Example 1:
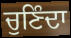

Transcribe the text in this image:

ਚੁਣਿੰਦਾ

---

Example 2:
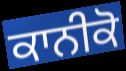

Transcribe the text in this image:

ਕਾਨੀਕੋ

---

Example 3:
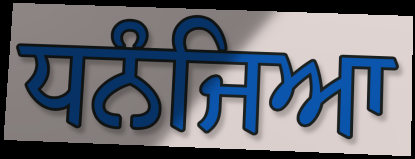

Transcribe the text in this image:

ਧਨੰਜਿਆ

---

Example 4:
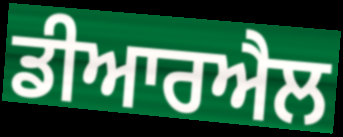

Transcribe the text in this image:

ਡੀਆਰਐਲ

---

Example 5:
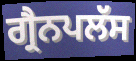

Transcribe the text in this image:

ਗ੍ਰੈਨਪਲੱਸ